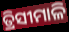
ତ୍ରିସୀମାଳି